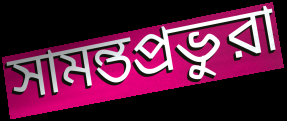
সামন্তপ্রভুরা